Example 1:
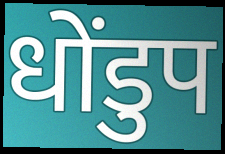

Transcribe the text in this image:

धोंडुप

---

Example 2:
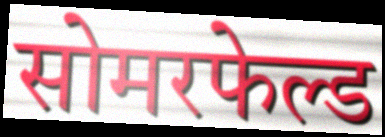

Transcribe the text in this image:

सोमरफेल्ड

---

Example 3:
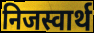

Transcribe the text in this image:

निजस्वार्थ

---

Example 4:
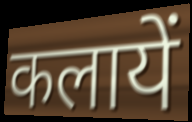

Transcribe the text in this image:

कलायें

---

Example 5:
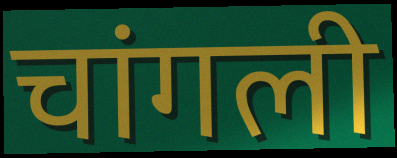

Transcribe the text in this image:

चांगली